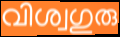
വിശ്വഗുരു